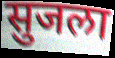
सुजला